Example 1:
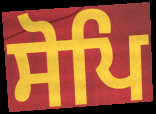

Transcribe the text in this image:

ਸੋਪਿ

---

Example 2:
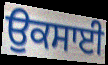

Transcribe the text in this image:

ਉਕਸਾਈ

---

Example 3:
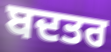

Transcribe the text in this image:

ਬਦਤਰ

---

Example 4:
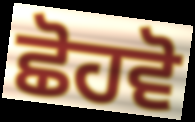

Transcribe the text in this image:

ਛੋਹਵੋ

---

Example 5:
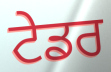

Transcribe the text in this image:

ਟੇਡਰ